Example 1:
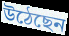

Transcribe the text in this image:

উঠেছেন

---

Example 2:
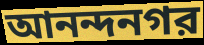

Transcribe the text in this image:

আনন্দনগর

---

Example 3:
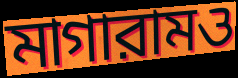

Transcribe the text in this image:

মাগারামও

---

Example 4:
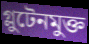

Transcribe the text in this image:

গ্লুটেনমুক্ত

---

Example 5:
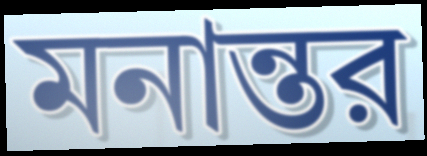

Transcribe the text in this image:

মনান্তর